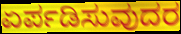
ಏರ್ಪಡಿಸುವುದರ